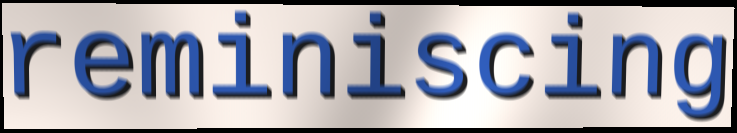
reminiscing